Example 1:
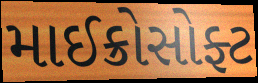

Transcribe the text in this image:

માઈક્રોસોફ્ટ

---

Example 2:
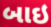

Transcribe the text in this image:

બાઇ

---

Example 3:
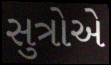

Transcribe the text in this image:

સુત્રોએ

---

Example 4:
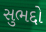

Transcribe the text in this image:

સુભદ્દો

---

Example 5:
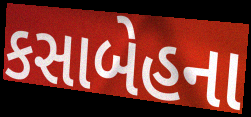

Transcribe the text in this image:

કસાબેહના